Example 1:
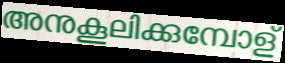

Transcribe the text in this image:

അനുകൂലിക്കുമ്പോള്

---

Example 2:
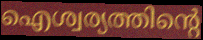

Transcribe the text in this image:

ഐശ്വര്യത്തിന്റെ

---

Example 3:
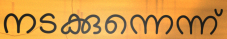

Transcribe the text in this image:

നടക്കുന്നെന്ന്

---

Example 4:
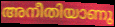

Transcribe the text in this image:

അനീതിയാണു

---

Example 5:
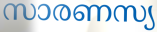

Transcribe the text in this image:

സാരണസ്യ